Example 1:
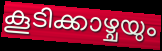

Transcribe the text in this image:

കൂടിക്കാഴ്ചയും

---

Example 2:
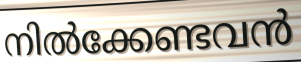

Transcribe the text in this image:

നിൽക്കേണ്ടവൻ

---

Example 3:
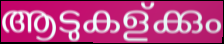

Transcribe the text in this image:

ആടുകള്ക്കും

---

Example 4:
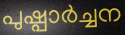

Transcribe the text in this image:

പുഷ്പാർച്ചന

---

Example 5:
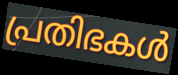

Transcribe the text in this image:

പ്രതിഭകൾ